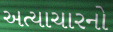
અત્યાચારનો